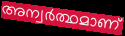
അന്വർത്ഥമാണ്